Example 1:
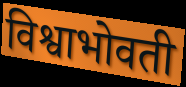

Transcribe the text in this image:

विश्वाभोवती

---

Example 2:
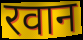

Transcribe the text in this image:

रवान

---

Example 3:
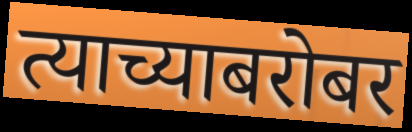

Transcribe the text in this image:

त्याच्याबरोबर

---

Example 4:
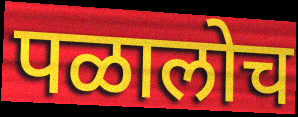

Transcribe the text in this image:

पळालोच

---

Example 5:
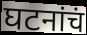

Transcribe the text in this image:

घटनांचं